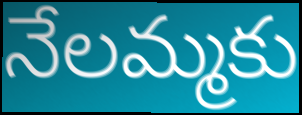
నేలమ్మకు